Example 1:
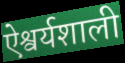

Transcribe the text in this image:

ऐश्वर्यशाली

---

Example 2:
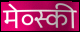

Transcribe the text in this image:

मेव्स्की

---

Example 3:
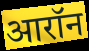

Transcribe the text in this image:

आरॉन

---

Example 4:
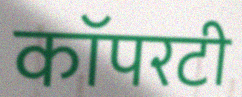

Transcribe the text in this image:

कॉपरटी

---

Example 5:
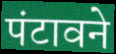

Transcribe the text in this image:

पंटावने